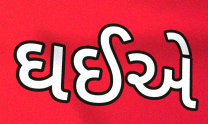
ઘઈએ